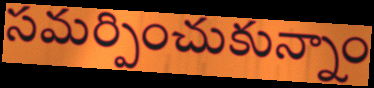
సమర్పించుకున్నాం